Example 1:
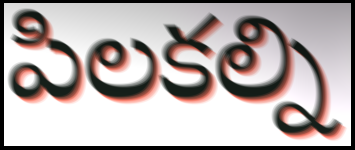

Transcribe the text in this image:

పిలకల్ని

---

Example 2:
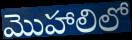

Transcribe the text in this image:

మొహాలిలో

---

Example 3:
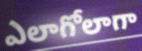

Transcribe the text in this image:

ఎలాగోలాగా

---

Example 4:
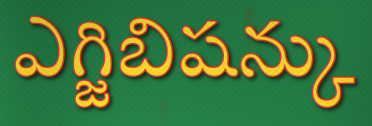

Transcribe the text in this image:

ఎగ్జిబిషన్కు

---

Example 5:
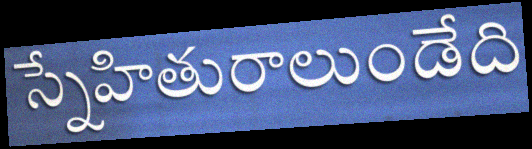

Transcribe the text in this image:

స్నేహితురాలుండేది